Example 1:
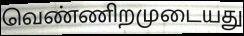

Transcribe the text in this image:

வெண்ணிறமுடையது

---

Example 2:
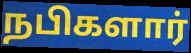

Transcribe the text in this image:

நபிகளார்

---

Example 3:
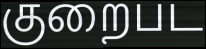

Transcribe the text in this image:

குறைபட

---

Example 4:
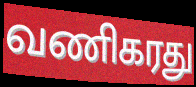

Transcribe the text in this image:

வணிகரது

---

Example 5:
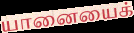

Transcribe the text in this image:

யானையைக்